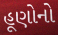
હૂણોનો